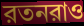
রতনরাও